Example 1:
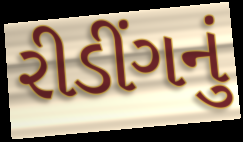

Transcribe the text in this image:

રીડીંગનું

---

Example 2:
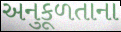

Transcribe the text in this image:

અનુકૂળતાના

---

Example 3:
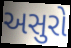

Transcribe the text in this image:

અસુરો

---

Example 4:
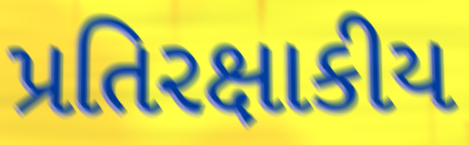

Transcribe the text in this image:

પ્રતિરક્ષાકીય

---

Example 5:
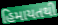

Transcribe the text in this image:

હિમાયતથી